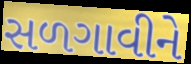
સળગાવીને